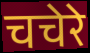
चचेरे